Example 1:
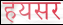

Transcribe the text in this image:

हयसर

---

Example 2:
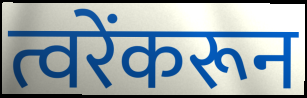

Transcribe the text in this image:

त्वरेंकरून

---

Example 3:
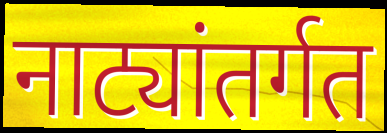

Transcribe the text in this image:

नाट्यांतर्गत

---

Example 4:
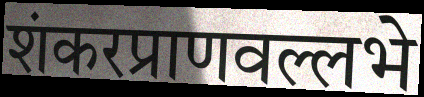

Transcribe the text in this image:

शंकरप्राणवल्लभे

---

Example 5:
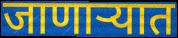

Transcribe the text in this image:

जाणाऱ्यात